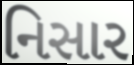
નિસાર